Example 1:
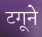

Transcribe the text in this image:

टगूने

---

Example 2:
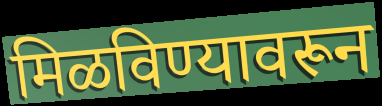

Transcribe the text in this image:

मिळविण्यावरून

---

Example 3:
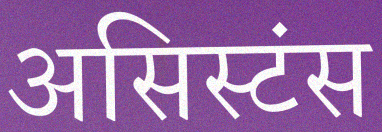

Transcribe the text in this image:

असिस्टंस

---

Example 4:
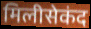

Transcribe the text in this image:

मिलीसेकंद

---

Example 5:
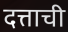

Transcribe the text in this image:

दत्ताची